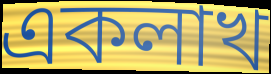
একলাখ